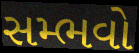
સમ્ભવો